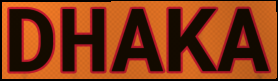
DHAKA